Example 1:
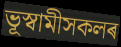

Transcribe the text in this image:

ভূস্বামীসকলৰ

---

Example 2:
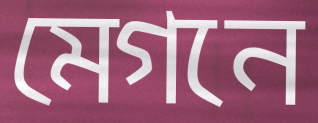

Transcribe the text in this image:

মেগনে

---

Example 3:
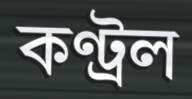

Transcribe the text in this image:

কণ্ট্ৰল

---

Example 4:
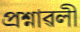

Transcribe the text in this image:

প্ৰশ্নাৱলী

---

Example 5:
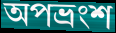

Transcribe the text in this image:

অপভ্ৰংশ